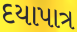
દયાપાત્ર